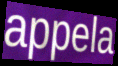
appela